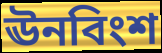
ঊনবিংশ